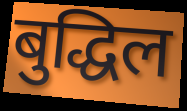
बुद्धिल